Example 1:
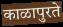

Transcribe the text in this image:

काळापुरते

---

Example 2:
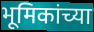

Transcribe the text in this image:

भूमिकांच्या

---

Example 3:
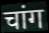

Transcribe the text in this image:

चांग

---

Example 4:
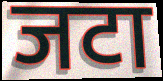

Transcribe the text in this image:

जटा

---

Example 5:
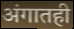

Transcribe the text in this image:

अंगातही